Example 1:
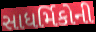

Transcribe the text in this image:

સાધર્મિકોની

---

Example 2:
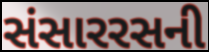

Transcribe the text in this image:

સંસારરસની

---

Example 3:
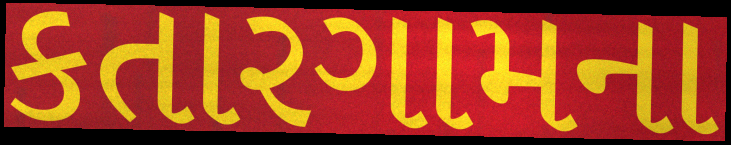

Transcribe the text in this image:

કતારગામના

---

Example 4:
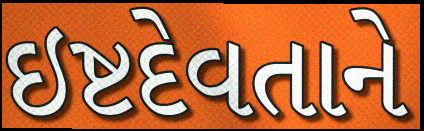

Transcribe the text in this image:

ઇષ્ટદેવતાને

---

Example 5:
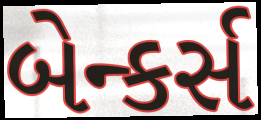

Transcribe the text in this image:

બેન્કર્સ